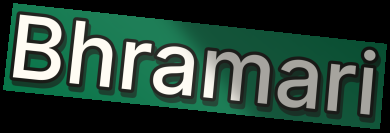
Bhramari